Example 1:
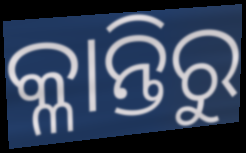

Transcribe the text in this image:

କ୍ଳାନ୍ତିରୁ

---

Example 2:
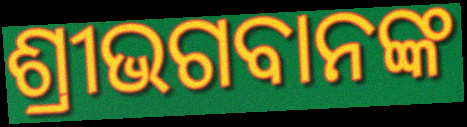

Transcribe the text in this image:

ଶ୍ରୀଭଗବାନଙ୍କ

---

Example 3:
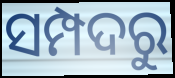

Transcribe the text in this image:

ସମ୍ପଦରୁ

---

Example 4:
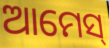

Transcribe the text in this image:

ଆମେସ୍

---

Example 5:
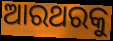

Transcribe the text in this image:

ଆରଥରକୁ